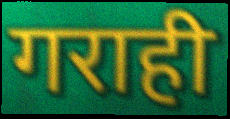
गराही